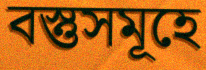
বস্তুসমূহে